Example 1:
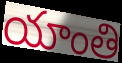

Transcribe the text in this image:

యాంతి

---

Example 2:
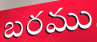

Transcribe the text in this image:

బరము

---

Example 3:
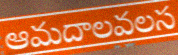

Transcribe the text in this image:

ఆమదాలవలస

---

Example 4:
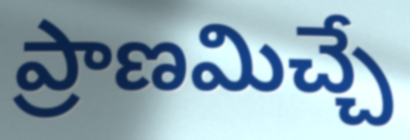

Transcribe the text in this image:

ప్రాణమిచ్చే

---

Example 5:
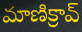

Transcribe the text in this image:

మాణిక్రావ్